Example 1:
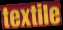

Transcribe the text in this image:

textile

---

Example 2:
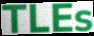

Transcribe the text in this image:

TLEs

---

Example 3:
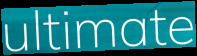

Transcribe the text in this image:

ultimate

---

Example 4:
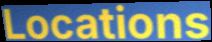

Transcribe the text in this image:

Locations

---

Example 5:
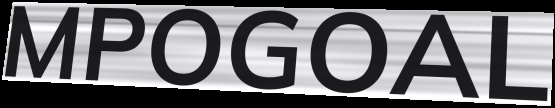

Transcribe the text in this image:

MPOGOAL